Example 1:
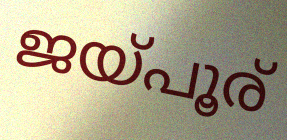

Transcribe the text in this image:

ജയ്പൂര്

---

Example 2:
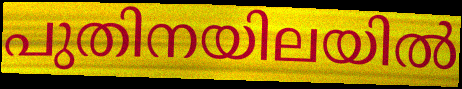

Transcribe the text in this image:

പുതിനയിലയിൽ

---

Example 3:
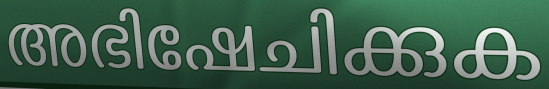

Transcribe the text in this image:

അഭിഷേചിക്കുക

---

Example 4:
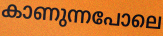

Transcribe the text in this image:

കാണുന്നപോലെ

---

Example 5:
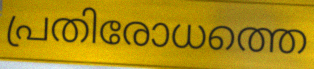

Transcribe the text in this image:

പ്രതിരോധത്തെ